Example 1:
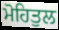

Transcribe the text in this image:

ਮੋਹਿਤੁਲ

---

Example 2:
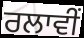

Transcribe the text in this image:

ਰਲਾਵੀਂ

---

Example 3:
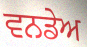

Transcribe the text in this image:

ਵਨਡੇਅ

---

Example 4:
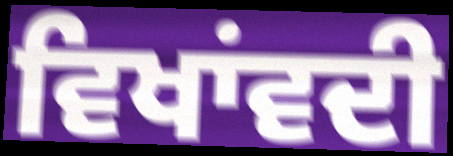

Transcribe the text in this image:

ਵਿਖਾਂਵਦੀ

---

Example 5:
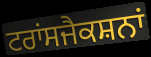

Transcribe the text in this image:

ਟਰਾਂਸਜੈਕਸ਼ਨਾਂ